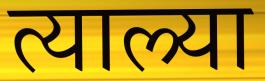
त्याल्या